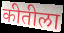
कीतीला